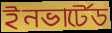
ইনভার্টেড